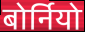
बोर्नियो